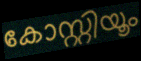
കോസ്റ്റിയൂം